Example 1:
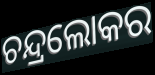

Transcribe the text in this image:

ଚନ୍ଦ୍ରଲୋକର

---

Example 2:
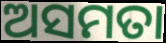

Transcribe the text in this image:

ଅସମତା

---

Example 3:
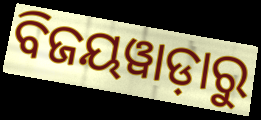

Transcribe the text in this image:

ବିଜୟୱାଡ଼ାରୁ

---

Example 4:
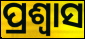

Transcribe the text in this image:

ପ୍ରଶ୍ଵାସ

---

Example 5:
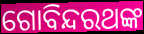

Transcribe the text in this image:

ଗୋବିନ୍ଦରଥଙ୍କ